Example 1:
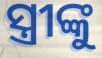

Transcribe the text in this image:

ସ୍ତ୍ରୀଙ୍କୁ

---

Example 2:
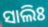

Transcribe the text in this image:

ସାଲିଃ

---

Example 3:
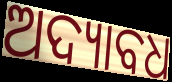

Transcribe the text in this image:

ଅଦ୍ୟାବଧ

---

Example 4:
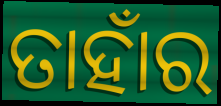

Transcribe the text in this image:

ତାହାଁର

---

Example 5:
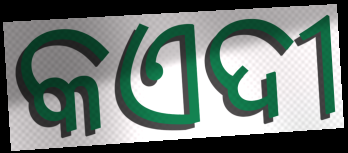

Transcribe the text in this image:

କଏଦୀ